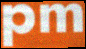
pm